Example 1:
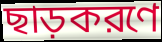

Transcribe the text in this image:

ছাড়করণে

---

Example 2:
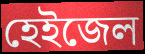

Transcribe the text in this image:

হেইজেল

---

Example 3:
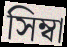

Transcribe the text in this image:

সিম্বা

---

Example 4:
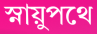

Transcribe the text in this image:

স্নায়ুপথে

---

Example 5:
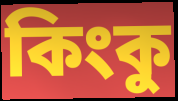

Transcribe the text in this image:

কিংকু